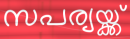
സപര്യയ്ക്ക്